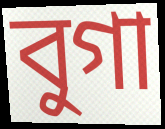
বুগা